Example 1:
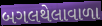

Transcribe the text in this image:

બગલથેલાવાળા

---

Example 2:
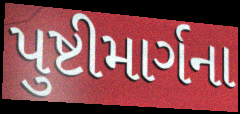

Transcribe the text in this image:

પુષ્ટીમાર્ગના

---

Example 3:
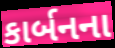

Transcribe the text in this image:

કાર્બનના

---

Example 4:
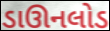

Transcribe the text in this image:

ડાઊનલોડ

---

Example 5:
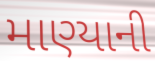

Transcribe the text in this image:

માણ્યાની